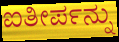
ಐತೀರ್ಪನ್ನು